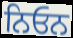
ਨਿਓਨ